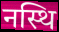
नस्थि